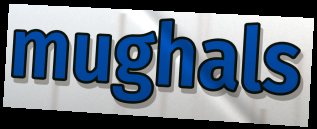
mughals